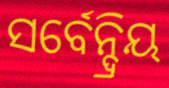
ସର୍ବେନ୍ଦ୍ରିୟ